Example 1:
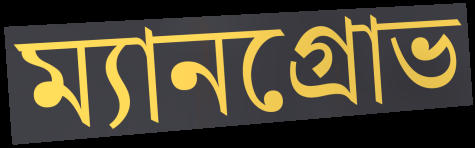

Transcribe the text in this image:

ম্যানগ্রোভ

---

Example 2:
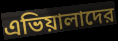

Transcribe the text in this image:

এভিয়ালাদের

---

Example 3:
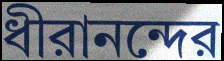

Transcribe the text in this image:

ধীরানন্দের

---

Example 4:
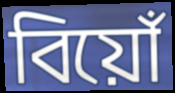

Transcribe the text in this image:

বিয়োঁ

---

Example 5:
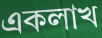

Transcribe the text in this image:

একলাখ